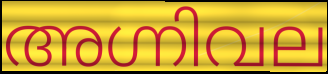
അഗ്നിവല